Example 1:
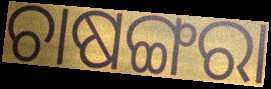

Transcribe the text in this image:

ଚାଷଙ୍ଗରା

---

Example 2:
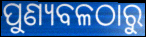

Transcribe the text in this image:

ପୁଣ୍ୟବଳଠାରୁ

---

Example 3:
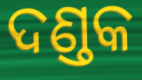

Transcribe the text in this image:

ଦଣ୍ଡକ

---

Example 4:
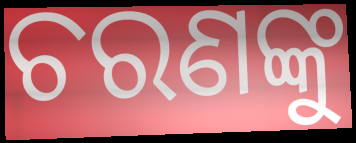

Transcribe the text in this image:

ଚରଣଙ୍କୁ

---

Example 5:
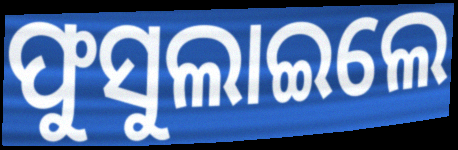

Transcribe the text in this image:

ଫୁସୁଲାଇଲେ